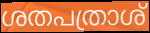
ശതപത്രാശ്